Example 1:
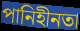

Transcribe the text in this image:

পানিহীনতা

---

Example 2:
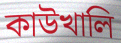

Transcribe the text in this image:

কাউখালি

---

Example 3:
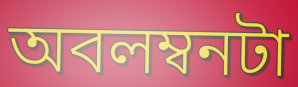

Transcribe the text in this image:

অবলম্বনটা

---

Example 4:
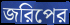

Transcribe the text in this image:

জরিপের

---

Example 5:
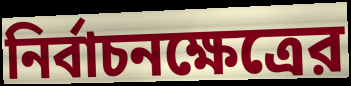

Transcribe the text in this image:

নির্বাচনক্ষেত্রের